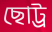
ছোট্র